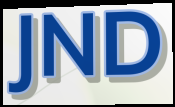
JND